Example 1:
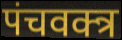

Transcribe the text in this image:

पंचवक्त्र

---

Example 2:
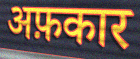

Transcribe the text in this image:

अफ़कार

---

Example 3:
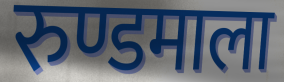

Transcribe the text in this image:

रुण्डमाला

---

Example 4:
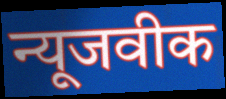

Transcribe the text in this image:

न्यूजवीक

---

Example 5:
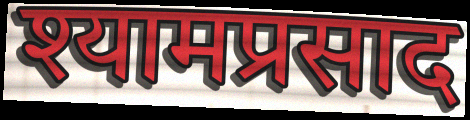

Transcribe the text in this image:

श्यामप्रसाद